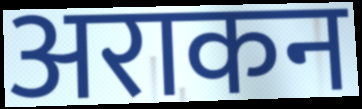
अराकन